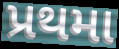
પ્રથમા